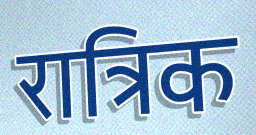
रात्रिक